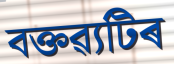
বক্তৱ্যটিৰ